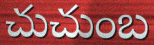
చుచుంబ